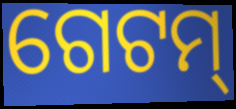
ଗେଟମ୍